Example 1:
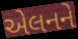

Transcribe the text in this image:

એલનને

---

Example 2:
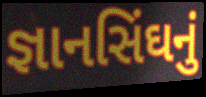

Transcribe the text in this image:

જ્ઞાનસિંઘનું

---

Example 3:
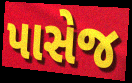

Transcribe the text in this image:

પાસેજ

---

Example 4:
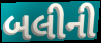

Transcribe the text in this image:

બલીની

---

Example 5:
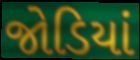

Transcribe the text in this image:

જોડિયાં